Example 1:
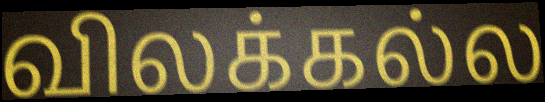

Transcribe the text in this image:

விலக்கல்ல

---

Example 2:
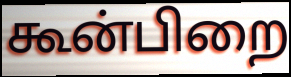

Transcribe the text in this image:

கூன்பிறை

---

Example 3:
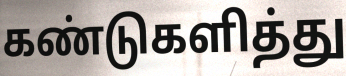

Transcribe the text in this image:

கண்டுகளித்து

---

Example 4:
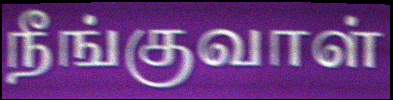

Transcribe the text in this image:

நீங்குவாள்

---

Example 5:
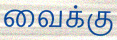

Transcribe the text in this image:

வைக்கு